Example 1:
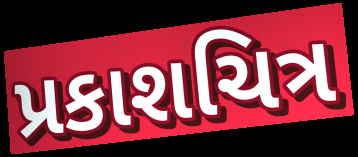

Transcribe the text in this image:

પ્રકાશચિત્ર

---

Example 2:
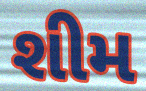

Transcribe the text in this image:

શીમ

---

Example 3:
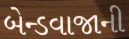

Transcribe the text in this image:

બેન્ડવાજાની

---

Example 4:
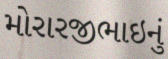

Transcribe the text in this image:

મોરારજીભાઇનું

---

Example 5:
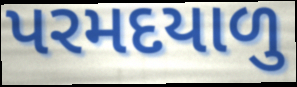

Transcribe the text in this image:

પરમદયાળુ